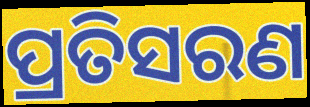
ପ୍ରତିସରଣ